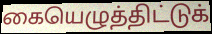
கையெழுத்திட்டுக்